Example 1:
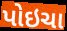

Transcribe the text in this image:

પોઇચા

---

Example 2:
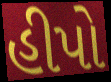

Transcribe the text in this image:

હીપો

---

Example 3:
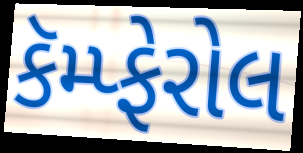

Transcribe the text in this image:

કૅમ્પ્ફેરોલ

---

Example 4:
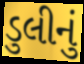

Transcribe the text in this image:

ડુલીનું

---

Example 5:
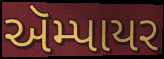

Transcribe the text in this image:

ઍમ્પાયર